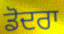
ਡੋਦਰਾ